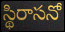
స్థిరాసనో